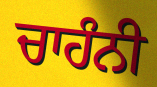
ਚਾਹੰਨੀ